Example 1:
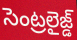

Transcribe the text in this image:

సెంట్రలైజ్డ్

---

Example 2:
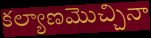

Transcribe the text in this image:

కల్యాణమొచ్చినా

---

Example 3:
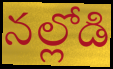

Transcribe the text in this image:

నల్లోడి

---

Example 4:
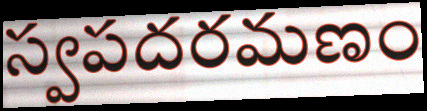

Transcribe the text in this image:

స్వపదరమణం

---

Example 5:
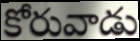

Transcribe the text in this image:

కోరువాడు